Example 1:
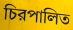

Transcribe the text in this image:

চিরপালিত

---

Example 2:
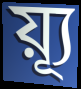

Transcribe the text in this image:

য়্যূ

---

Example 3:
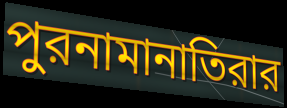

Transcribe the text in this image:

পুরনামানাতিরার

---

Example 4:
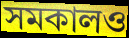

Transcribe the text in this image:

সমকালও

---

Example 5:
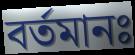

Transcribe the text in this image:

বর্তমানঃ